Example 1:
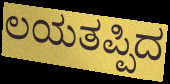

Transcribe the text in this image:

ಲಯತಪ್ಪಿದ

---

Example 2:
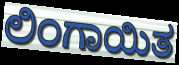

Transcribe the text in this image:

ಲಿಂಗಾಯಿತ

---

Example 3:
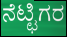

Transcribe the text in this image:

ನೆಟ್ಟಿಗರ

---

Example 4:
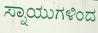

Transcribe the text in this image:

ಸ್ನಾಯುಗಳಿಂದ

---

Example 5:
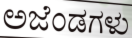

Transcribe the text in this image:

ಅಜೆಂಡಗಳು